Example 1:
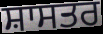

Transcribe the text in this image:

ਸ਼ਾਸਤਰ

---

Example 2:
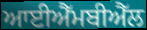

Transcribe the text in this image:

ਆਈਐੱਮਬੀਐੱਲ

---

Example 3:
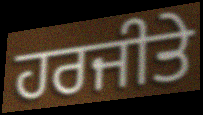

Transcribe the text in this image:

ਹਰਜੀਤੇ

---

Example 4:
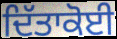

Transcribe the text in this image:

ਦਿੱਤਾਕੋਈ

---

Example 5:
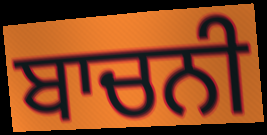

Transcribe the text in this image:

ਬਾਚਨੀ